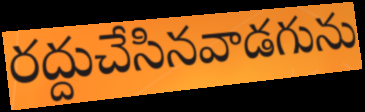
రద్దుచేసినవాడగును